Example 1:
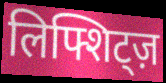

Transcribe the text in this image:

लिफ्शिट्ज़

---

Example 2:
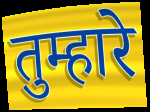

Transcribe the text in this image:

तुम्हारे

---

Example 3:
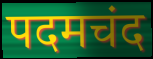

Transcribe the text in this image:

पदमचंद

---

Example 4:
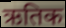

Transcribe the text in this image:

ऋतिक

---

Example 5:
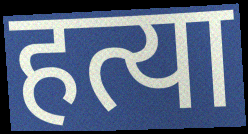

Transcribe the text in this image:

हत्या